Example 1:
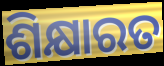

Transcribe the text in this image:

ଶିକ୍ଷାରତ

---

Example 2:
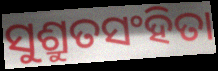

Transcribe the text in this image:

ସୁଶ୍ରୁତସଂହିତା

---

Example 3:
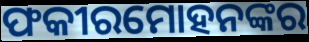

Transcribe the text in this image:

ଫକୀରମୋହନଙ୍କର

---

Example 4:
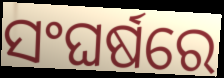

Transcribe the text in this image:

ସଂଘର୍ଷରେ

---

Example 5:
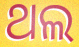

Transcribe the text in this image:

ଥଲ